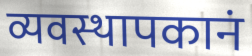
व्यवस्थापकानं